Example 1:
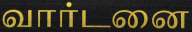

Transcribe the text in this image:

வார்டனை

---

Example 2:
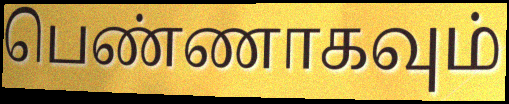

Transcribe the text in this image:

பெண்ணாகவும்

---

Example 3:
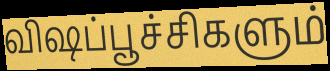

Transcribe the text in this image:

விஷப்பூச்சிகளும்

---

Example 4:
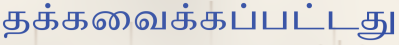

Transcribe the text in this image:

தக்கவைக்கப்பட்டது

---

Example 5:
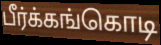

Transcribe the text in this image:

பீர்க்கங்கொடி